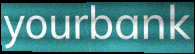
yourbank